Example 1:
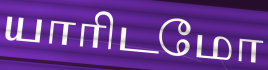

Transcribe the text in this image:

யாரிடமோ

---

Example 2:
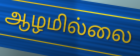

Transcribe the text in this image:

ஆழமில்லை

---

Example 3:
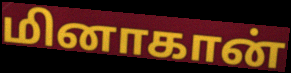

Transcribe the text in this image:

மினாகான்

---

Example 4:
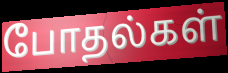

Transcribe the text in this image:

போதல்கள்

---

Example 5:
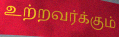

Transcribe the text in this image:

உற்றவர்க்கும்